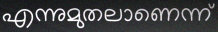
എന്നുമുതലാണെന്ന്